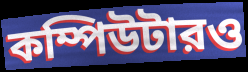
কম্পিউটারও